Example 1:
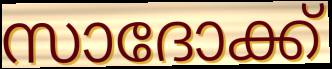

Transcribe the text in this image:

സാദോക്ക്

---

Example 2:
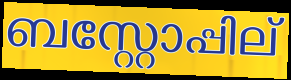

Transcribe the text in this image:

ബസ്റ്റോപ്പില്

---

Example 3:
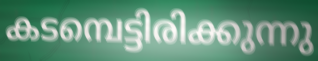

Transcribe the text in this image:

കടമ്പെട്ടിരിക്കുന്നു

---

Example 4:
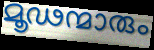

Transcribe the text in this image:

മൂഢന്മാരും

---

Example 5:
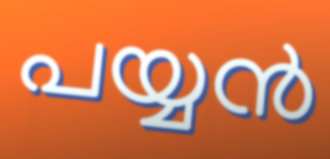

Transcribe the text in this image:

പയ്യൻ